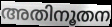
അതിനൂതന